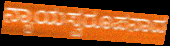
ನ್ಯಾಯಸ್ವರೂಪನಾದ